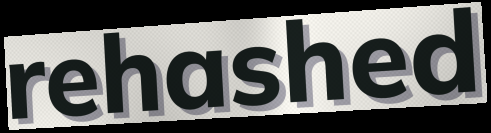
rehashed